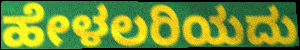
ಹೇಳಲರಿಯದು